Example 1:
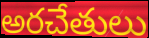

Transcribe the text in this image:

అరచేతులు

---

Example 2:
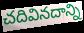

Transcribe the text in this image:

చదివినదాన్ని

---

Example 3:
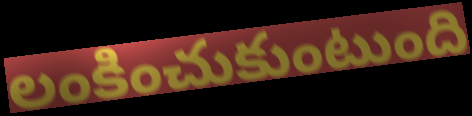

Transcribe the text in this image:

లంకించుకుంటుంది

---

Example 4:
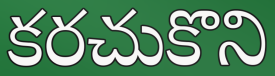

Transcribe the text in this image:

కరచుకొని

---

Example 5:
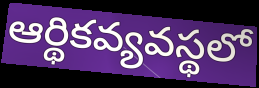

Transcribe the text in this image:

ఆర్థికవ్యవస్థలో